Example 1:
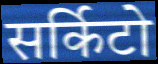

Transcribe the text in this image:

सर्किटो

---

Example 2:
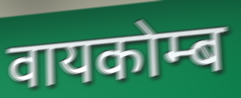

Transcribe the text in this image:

वायकोम्ब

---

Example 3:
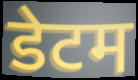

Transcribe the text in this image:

डेटम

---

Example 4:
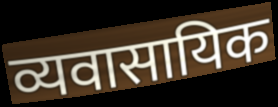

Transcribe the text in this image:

व्यवासायिक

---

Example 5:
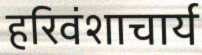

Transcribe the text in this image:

हरिवंशाचार्य